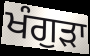
ਖੰਗੁੜਾ